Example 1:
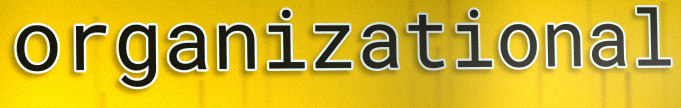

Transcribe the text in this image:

organizational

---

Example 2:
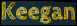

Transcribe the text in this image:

Keegan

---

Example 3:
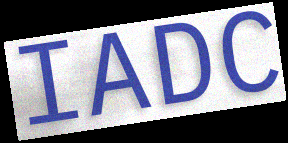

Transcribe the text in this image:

IADC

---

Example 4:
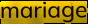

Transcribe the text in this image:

mariage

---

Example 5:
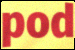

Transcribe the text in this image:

pod